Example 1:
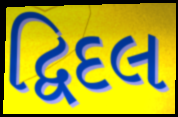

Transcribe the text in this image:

દ્વિદલ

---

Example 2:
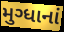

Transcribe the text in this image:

મુગ્ધાનાં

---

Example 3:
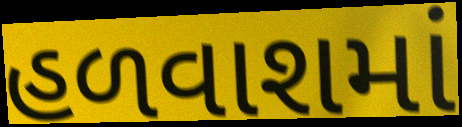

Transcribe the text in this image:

હળવાશમાં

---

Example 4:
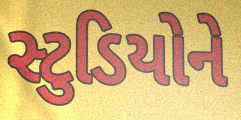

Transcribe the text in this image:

સ્ટુડિયોને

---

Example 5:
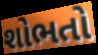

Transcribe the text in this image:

શોભતો